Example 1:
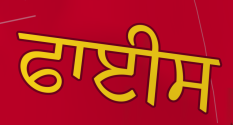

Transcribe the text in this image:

ਫਾਈਸ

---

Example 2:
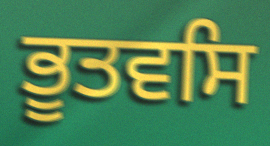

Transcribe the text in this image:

ਭੂਤਵਸਿ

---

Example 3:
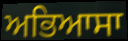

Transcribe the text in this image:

ਅਭਿਆਸਾ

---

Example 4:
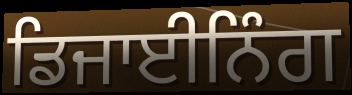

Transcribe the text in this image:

ਡਿਜਾਈਨਿੰਗ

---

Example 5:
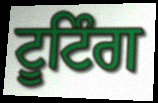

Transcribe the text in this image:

ਟੂਟਿੰਗ